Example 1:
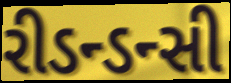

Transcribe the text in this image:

રીડન્ડન્સી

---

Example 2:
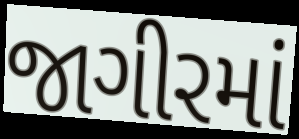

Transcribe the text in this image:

જાગીરમાં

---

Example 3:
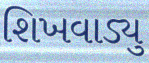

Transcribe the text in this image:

શિખવાડ્યુ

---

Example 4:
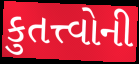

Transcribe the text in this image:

કુતત્ત્વોની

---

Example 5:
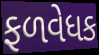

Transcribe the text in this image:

ફળવેધક